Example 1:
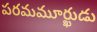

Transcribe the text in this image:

పరమమూర్ఖుడు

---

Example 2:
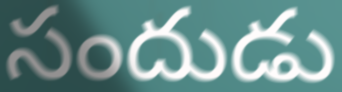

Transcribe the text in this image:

సందుడు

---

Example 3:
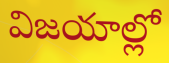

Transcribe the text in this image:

విజయాల్లో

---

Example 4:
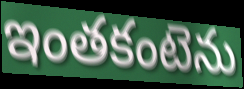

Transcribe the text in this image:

ఇంతకంటెను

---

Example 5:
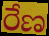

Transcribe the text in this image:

రేణ